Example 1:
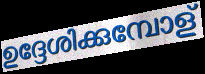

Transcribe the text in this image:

ഉദ്ദേശിക്കുമ്പോള്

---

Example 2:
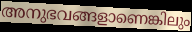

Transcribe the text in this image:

അനുഭവങ്ങളാണെങ്കിലും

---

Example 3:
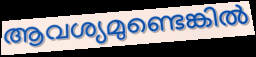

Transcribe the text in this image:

ആവശ്യമുണ്ടെങ്കിൽ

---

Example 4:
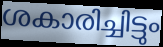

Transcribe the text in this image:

ശകാരിച്ചിട്ടും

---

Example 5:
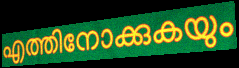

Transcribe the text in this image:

എത്തിനോക്കുകയും